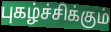
புகழ்ச்சிக்கும்